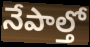
నేపాల్తో